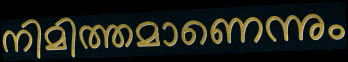
നിമിത്തമാണെന്നും